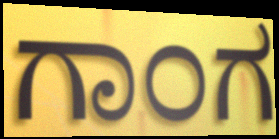
ಗಾಂಗ